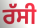
ਰੱਸੀ